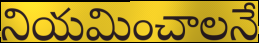
నియమించాలనే